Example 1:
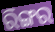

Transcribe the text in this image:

ରିଙ୍ଗର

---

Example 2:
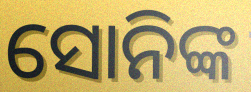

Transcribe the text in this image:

ସୋନିଙ୍କ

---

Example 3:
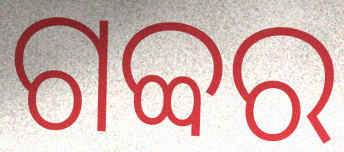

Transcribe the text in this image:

ଗବ୍ବର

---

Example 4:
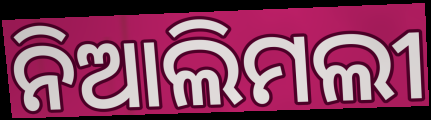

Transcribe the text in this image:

ନିଆଲିମଲୀ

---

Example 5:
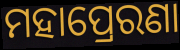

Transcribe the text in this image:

ମହାପ୍ରେରଣା